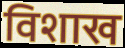
विशाख